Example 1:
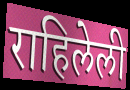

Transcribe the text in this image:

राहिलेली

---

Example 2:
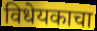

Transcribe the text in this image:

विधेयकाचा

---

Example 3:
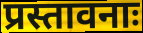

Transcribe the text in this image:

प्रस्तावनाः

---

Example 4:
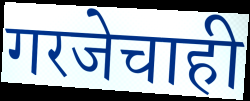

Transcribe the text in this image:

गरजेचाही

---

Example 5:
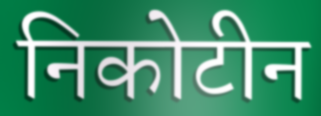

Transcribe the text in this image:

निकोटीन